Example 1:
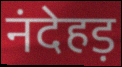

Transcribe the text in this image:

नंदेहड़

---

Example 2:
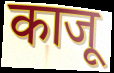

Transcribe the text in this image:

काजू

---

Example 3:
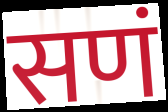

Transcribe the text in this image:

सणं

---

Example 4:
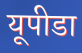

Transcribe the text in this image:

यूपीडा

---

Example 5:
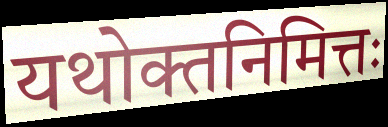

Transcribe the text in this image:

यथोक्तनिमित्तः